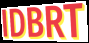
IDBRT